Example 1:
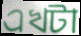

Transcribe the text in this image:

এখটা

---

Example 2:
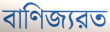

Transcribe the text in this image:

বাণিজ্যরত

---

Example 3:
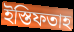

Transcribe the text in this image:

ইস্তিফতাহ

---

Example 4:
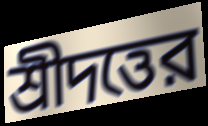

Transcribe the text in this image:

শ্রীদত্তের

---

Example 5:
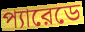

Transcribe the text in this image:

প্যারেডে